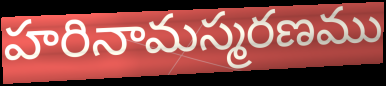
హరినామస్మరణము